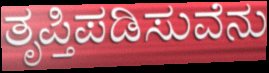
ತೃಪ್ತಿಪಡಿಸುವೆನು